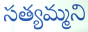
సత్యమ్మని